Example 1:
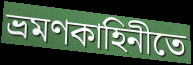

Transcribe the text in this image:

ভ্রমণকাহিনীতে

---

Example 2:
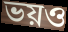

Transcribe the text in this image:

ভয়ও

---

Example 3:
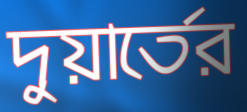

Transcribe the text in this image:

দুয়ার্তের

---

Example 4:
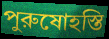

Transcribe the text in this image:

পুরুষোহস্তি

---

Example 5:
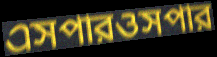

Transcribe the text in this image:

এসপারওসপার